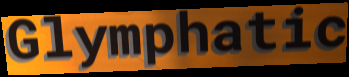
Glymphatic